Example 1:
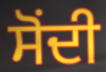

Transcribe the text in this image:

ਸੋਂਦੀ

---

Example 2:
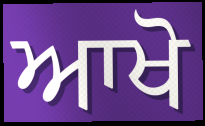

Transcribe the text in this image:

ਆਖੋ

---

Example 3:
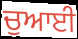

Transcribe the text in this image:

ਚੁਆਈ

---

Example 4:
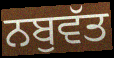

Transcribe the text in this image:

ਨਬੁਵੱਤ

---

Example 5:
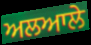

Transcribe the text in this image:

ਅਲਆਲੇ